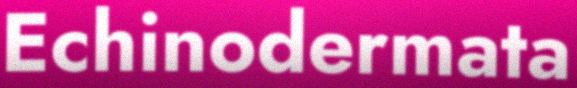
Echinodermata